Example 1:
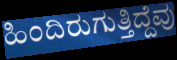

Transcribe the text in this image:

ಹಿಂದಿರುಗುತ್ತಿದ್ದೆವು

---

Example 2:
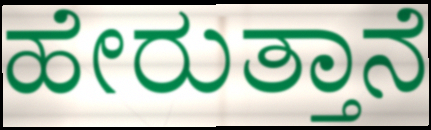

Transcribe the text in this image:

ಹೇರುತ್ತಾನೆ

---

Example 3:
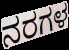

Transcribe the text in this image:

ನರಗಳ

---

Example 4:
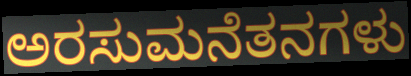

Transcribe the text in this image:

ಅರಸುಮನೆತನಗಳು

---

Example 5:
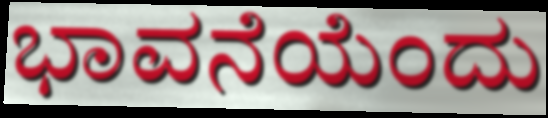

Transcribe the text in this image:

ಭಾವನೆಯೆಂದು